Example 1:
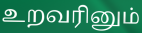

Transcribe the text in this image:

உறவரினும்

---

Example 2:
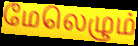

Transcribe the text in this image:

மேலெழும்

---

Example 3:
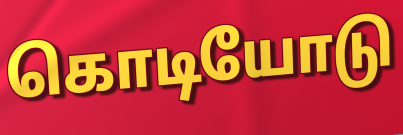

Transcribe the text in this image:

கொடியோடு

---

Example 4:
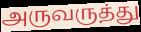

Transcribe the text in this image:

அருவருத்து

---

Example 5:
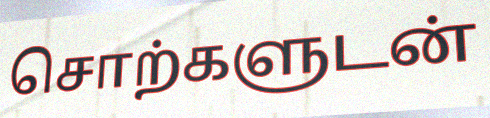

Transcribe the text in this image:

சொற்களுடன்